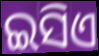
ଇସିଏ